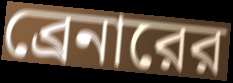
ব্রেনারের